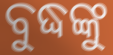
ବୁଦ୍ଧଙ୍କୁ